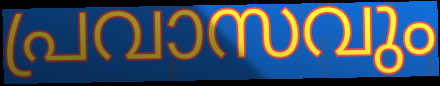
പ്രവാസവും